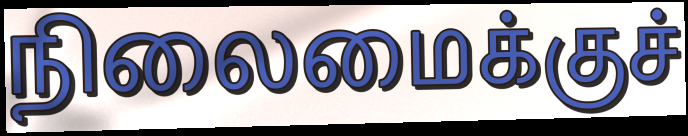
நிலைமைக்குச்